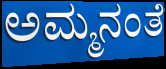
ಅಮ್ಮನಂತೆ